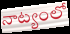
నాట్యంలో